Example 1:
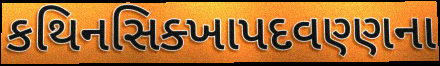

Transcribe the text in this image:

કથિનસિક્ખાપદવણ્ણના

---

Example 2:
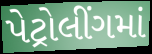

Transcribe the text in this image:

પેટ્રોલીંગમાં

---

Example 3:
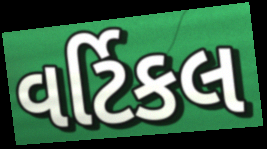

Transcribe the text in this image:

વર્ટિકલ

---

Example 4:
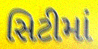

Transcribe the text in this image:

સિટીમાં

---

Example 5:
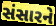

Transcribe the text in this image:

સંસારને